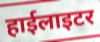
हाईलाइटर